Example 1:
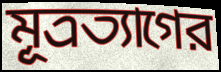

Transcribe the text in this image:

মূত্রত্যাগের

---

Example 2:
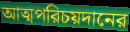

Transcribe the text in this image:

আত্মপরিচয়দানের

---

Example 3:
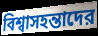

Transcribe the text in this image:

বিশ্বাসহন্তাদের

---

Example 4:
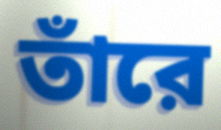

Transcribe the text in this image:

তাঁরে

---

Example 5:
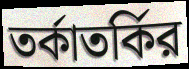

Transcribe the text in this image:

তর্কাতর্কির